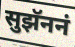
सुझॅननं